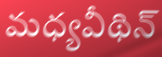
మధ్యవీథిన్